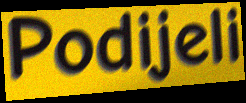
Podijeli